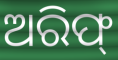
ଅରିଫ୍